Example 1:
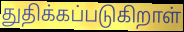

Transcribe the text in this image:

துதிக்கப்படுகிறாள்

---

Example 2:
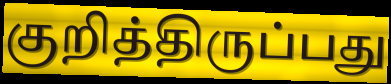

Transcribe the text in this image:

குறித்திருப்பது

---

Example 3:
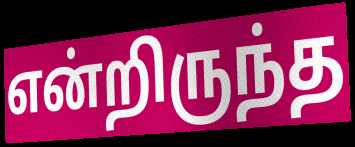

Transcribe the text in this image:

என்றிருந்த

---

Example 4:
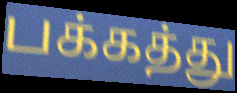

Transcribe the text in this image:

பக்கத்து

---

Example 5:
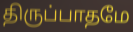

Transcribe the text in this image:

திருப்பாதமே